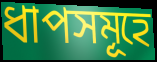
ধাপসমূহে